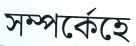
সম্পৰ্কেহে